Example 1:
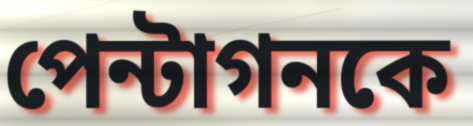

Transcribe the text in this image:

পেন্টাগনকে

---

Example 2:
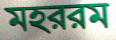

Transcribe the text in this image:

মহররম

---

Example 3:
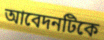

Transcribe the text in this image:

আবেদনটিকে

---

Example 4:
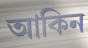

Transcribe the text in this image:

আকিন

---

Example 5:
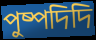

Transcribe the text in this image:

পুষ্পদিদি